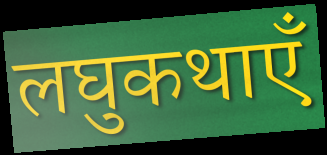
लघुकथाएँ